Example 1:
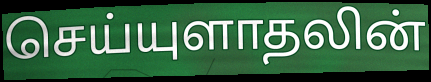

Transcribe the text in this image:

செய்யுளாதலின்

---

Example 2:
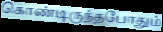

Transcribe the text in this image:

கொண்டிருந்தபோதும்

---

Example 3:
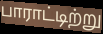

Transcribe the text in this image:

பாராட்டிற்று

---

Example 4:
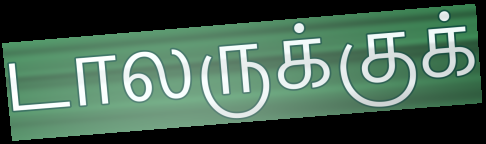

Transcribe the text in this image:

டாலருக்குக்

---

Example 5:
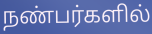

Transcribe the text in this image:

நண்பர்களில்